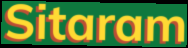
Sitaram